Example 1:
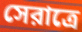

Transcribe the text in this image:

সেরাত্রে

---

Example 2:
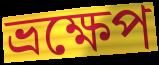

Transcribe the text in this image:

ভ্রক্ষেপ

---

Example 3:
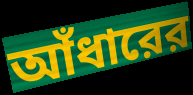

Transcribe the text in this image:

আঁধারের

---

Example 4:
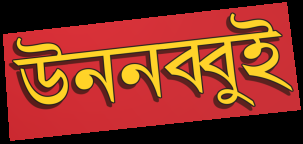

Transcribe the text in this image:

উননব্বুই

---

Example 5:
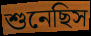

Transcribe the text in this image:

শুনেছিস